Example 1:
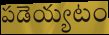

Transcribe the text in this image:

పడెయ్యటం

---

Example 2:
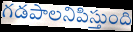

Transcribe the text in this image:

గడపాలనిపిస్తుంది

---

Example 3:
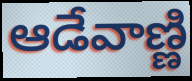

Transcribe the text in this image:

ఆడేవాణ్ణి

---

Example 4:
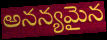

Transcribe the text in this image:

అనన్యమైన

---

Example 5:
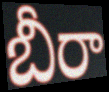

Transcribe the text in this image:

బీరా